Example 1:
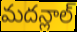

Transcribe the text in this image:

మదన్లాల్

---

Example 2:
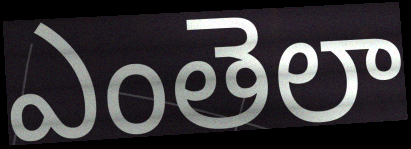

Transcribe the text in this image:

ఎంతెలా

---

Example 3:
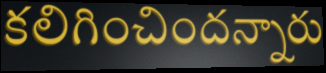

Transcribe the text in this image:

కలిగించిందన్నారు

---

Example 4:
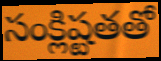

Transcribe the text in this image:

సంక్లిష్టతతో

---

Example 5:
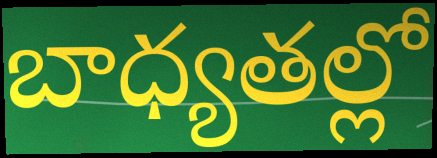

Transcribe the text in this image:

బాధ్యతల్లో